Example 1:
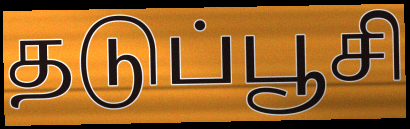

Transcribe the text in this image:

தடுப்பூசி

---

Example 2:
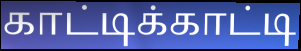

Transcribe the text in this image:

காட்டிக்காட்டி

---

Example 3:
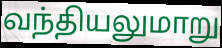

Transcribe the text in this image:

வந்தியலுமாறு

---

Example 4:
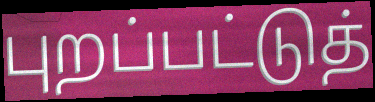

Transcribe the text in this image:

புறப்பட்டுத்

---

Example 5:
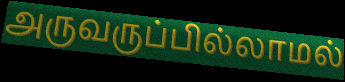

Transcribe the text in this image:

அருவருப்பில்லாமல்